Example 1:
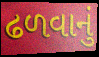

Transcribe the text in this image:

ઢળવાનું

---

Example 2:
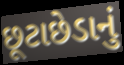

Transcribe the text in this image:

છૂટાછેડાનું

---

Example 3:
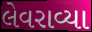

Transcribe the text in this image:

લેવરાવ્યા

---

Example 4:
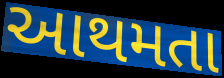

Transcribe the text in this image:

આથમતા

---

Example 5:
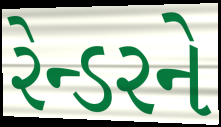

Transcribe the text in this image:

રેન્ડરને